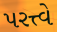
પરત્ત્વે